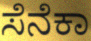
ಸೆನೆಕಾ